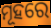
ମୂହରେ